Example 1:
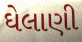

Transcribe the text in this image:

ઘેલાણી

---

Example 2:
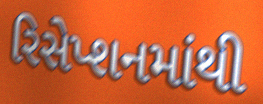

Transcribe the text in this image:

રિસેપ્શનમાંથી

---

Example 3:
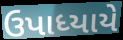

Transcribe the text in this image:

ઉપાધ્યાયે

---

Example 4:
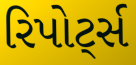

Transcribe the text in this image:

રિપોર્ટ્સ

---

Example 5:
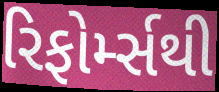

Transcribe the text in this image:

રિફોર્મ્સથી